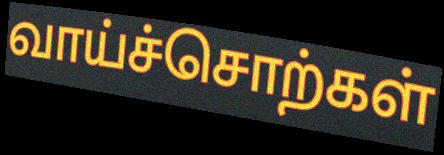
வாய்ச்சொற்கள்